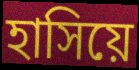
হাসিয়ে